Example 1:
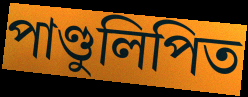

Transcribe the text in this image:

পাণ্ডুলিপিত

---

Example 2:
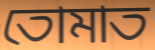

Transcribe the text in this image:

তোমাত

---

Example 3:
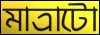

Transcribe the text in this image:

মাত্ৰাটো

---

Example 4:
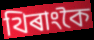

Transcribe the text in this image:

থিৰাংকৈ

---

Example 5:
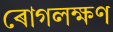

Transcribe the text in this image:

ৰোগলক্ষণ